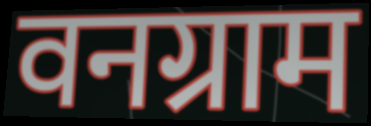
वनग्राम